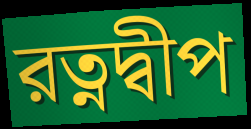
রত্নদ্বীপ